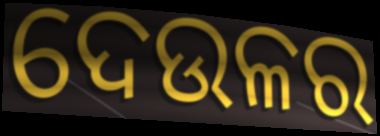
ଦେଉଳର